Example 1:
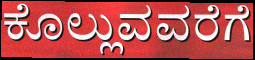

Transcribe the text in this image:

ಕೊಲ್ಲುವವರೆಗೆ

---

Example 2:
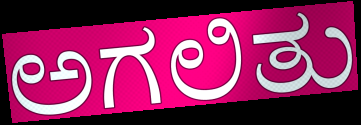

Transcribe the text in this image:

ಅಗಲಿತು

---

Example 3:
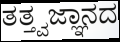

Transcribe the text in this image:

ತತ್ತ್ವಜ್ಞಾನದ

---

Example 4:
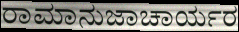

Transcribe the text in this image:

ರಾಮಾನುಜಾಚಾರ್ಯರ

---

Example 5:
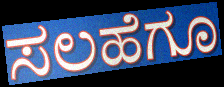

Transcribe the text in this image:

ಸಲಹೆಗೂ